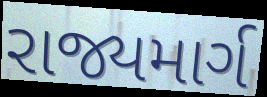
રાજ્યમાર્ગ